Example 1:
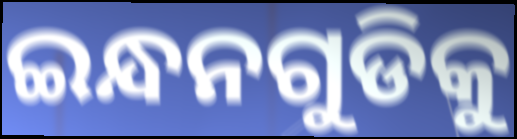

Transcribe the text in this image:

ଇନ୍ଧନଗୁଡିକୁ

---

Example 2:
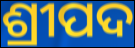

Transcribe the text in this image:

ଶ୍ରୀପଦ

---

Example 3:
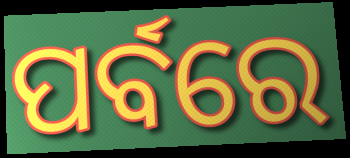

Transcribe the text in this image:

ପର୍ବରେ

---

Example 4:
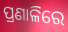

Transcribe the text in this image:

ପ୍ରଣାଳିରେ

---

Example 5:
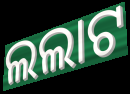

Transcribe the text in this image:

ଲଲାଟ